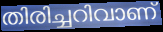
തിരിച്ചറിവാണ്